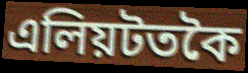
এলিয়টতকৈ